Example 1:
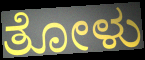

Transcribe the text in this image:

ತೋಳು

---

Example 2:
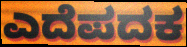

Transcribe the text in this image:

ಎದೆಪದಕ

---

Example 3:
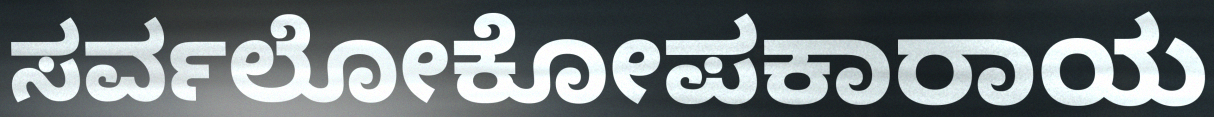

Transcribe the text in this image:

ಸರ್ವಲೋಕೋಪಕಾರಾಯ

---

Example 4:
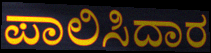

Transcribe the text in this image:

ಪಾಲಿಸಿದಾರ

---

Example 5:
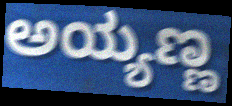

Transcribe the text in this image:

ಅಯ್ಯಣ್ಣ